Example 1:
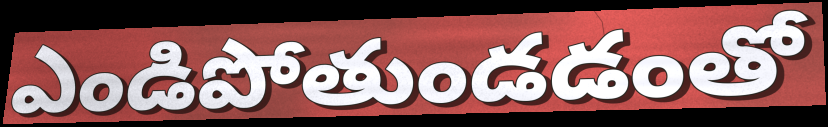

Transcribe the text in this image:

ఎండిపోతుండడంతో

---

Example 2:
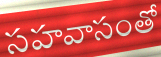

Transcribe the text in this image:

సహవాసంతో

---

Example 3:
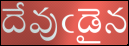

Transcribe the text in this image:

దేవుఁడైన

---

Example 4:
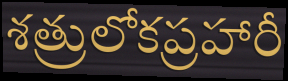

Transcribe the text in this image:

శత్రులోకప్రహారీ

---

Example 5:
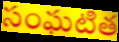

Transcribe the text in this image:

సంఘటిత